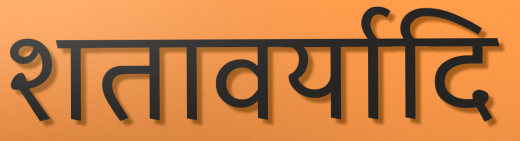
शतावर्यादि